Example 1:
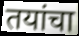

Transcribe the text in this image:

तयांचा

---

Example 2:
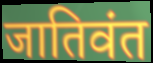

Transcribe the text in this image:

जातिवंत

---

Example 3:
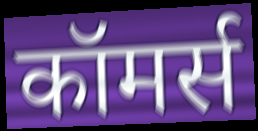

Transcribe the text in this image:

कॉमर्स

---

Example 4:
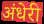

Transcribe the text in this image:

अंधेरी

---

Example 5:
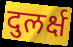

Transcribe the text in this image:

दुलर्क्ष